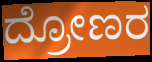
ದ್ರೋಣರ